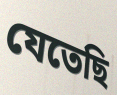
যেতেছি